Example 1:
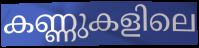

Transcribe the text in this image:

കണ്ണുകളിലെ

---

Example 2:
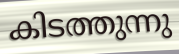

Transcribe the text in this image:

കിടത്തുന്നു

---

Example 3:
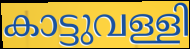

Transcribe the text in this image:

കാട്ടുവള്ളി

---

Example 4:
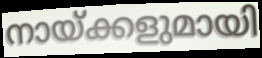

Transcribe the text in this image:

നായ്ക്കളുമായി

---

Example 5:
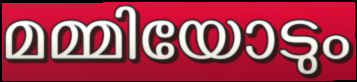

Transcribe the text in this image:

മമ്മിയോടും